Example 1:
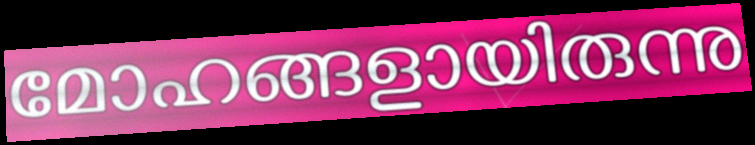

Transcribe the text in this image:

മോഹങ്ങളായിരുന്നു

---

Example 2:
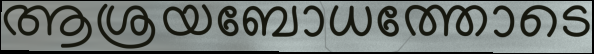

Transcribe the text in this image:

ആശ്രയബോധത്തോടെ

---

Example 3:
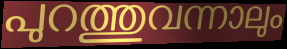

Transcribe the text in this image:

പുറത്തുവന്നാലും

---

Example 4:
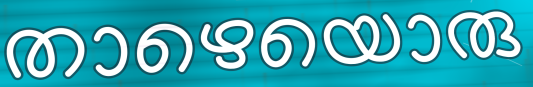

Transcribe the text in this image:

താഴെയൊരു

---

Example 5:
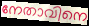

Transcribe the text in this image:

നേതാവിനെ